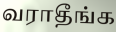
வராதீங்க